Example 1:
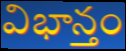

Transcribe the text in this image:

విభాన్తం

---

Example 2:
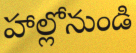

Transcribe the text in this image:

హాల్లోనుండి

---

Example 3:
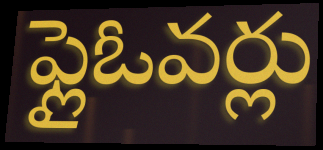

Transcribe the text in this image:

ఫ్లైఓవర్లు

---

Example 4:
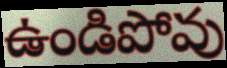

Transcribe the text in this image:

ఉండిపోవు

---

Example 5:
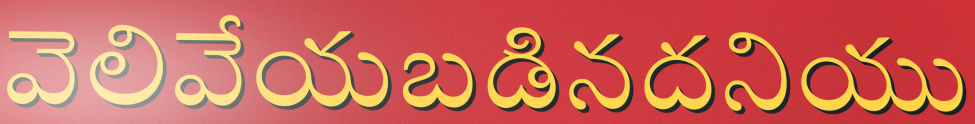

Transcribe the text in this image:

వెలివేయబడినదనియు